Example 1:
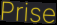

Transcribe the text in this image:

Prise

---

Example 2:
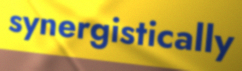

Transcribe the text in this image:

synergistically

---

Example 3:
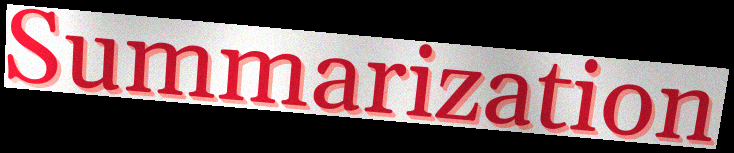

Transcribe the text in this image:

Summarization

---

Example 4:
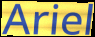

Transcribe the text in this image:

Ariel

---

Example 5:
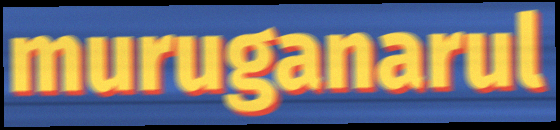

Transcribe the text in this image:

muruganarul